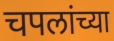
चपलांच्या